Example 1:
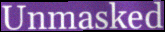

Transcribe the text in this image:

Unmasked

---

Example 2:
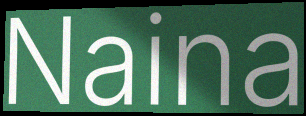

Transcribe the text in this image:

Naina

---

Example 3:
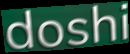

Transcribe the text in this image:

doshi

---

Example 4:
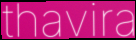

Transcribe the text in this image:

thavira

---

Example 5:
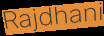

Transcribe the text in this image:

Rajdhani